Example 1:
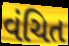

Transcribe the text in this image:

વંચિત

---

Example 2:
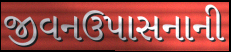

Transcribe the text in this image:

જીવનઉપાસનાની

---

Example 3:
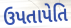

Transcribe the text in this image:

ઉપતાપેતિ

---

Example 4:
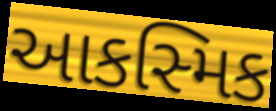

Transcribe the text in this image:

આકસ્મિક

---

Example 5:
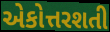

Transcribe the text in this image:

એકોત્તરશતી